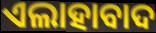
ଏଲାହାବାଦ